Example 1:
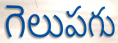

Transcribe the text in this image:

గెలుపగు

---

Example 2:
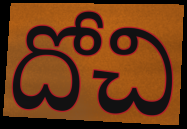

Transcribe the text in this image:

దోచి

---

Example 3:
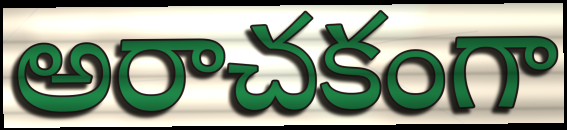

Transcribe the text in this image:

అరాచకంగా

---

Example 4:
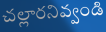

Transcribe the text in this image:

చల్లారనివ్వండి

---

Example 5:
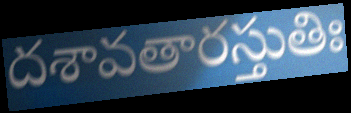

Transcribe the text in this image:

దశావతారస్తుతిః